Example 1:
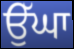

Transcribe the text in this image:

ਉੱਘਾ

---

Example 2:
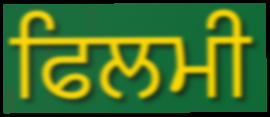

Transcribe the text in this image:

ਫਿਲਮੀ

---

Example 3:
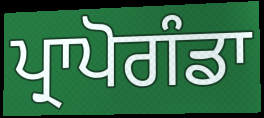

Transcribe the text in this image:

ਪ੍ਰਾਪੋਗੰਡਾ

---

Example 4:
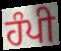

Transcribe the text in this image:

ਹੰਪੀ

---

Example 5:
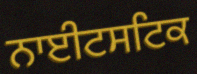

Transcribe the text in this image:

ਨਾਈਟਸਟਿਕ